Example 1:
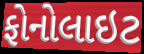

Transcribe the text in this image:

ફોનોલાઇટ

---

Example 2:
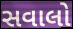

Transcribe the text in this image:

સવાલો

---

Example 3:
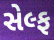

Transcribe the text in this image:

સેલ્ફ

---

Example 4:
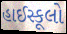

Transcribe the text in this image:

હાઈસ્કૂલો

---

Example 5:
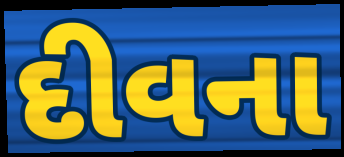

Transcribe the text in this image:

દીવના